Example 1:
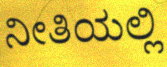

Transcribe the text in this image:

ನೀತಿಯಲ್ಲಿ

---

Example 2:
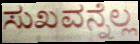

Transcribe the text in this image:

ಸುಖವನ್ನೆಲ್ಲ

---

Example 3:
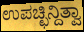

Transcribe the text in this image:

ಉಪಚ್ಛಿನ್ದಿತ್ವಾ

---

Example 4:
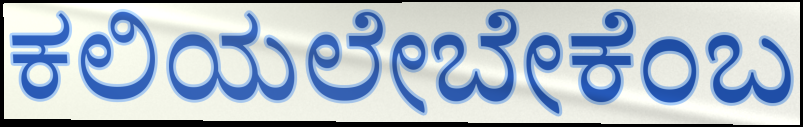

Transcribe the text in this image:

ಕಲಿಯಲೇಬೇಕೆಂಬ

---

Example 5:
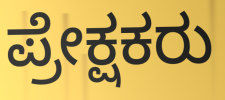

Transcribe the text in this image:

ಪ್ರೇಕ್ಷಕರು